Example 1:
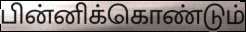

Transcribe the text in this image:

பின்னிக்கொண்டும்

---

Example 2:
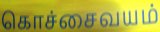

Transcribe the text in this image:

கொச்சைவயம்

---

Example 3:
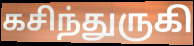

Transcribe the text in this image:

கசிந்துருகி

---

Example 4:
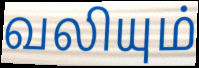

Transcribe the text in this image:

வலியும்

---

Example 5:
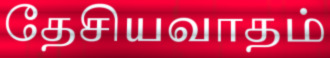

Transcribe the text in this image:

தேசியவாதம்